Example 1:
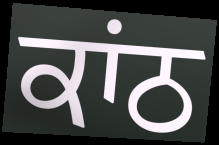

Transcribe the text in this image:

ਕਾਂਠ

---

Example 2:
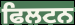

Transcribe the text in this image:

ਫਿਲਟਨ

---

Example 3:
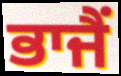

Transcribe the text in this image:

ਭਾਜੈਂ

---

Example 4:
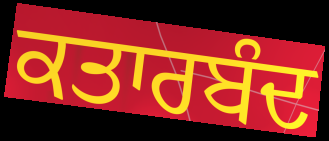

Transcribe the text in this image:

ਕਤਾਰਬੰਦ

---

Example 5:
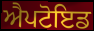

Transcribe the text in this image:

ਐਪਟੋਇਡ